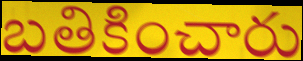
బతికించారు